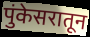
पुंकेसरातून